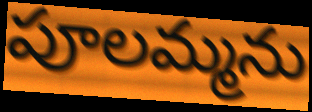
పూలమ్మను